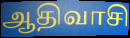
ஆதிவாசி